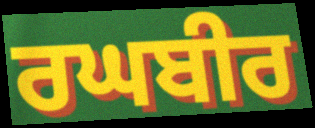
ਰਘਬੀਰ